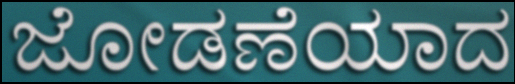
ಜೋಡಣೆಯಾದ